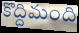
కొద్దిమంది